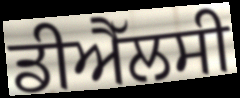
ਡੀਐੱਲਸੀ